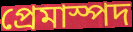
প্রেমাস্পদ